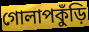
গোলাপকুঁড়ি